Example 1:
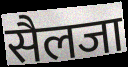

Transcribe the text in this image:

सैलजा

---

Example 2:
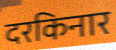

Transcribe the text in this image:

दरकिनार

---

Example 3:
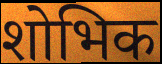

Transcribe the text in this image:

शोभिक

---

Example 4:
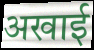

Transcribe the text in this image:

अखाई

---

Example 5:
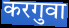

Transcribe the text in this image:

करगुवा